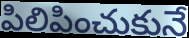
పిలిపించుకునే